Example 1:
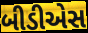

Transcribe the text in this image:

બીડીએસ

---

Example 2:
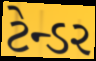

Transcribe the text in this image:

ટેન્ડર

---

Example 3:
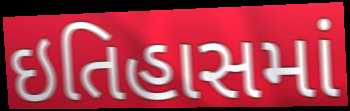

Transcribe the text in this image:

ઇતિહાસમાં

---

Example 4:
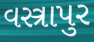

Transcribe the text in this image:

વસ્ત્રાપુર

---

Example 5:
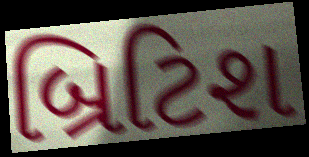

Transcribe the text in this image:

બ્રિટિશ